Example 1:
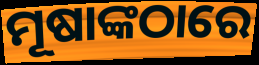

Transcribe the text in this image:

ମୂଷାଙ୍କଠାରେ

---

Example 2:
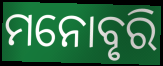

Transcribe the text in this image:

ମନୋବୃରି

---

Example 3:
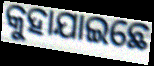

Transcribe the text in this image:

କୁହାଯାଇଛେ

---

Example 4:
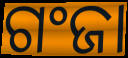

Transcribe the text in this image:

ଗଂଜା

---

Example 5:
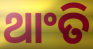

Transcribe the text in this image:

ଥାଂତି